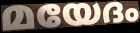
മയേദം